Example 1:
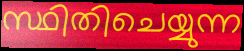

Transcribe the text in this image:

സ്ഥിതിചെയ്യുന്ന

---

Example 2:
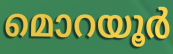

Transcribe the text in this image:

മൊറയൂർ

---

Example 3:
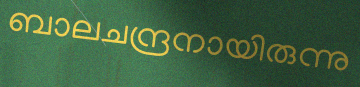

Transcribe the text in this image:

ബാലചന്ദ്രനായിരുന്നു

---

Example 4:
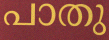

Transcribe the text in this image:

പാതു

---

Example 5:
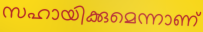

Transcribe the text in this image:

സഹായിക്കുമെന്നാണ്